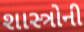
શાસ્ત્રોની